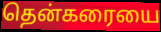
தென்கரையை